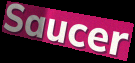
Saucer